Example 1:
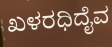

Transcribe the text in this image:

ಖಳರಧಿದೈವ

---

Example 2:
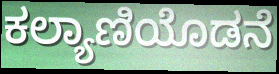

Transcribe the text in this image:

ಕಲ್ಯಾಣಿಯೊಡನೆ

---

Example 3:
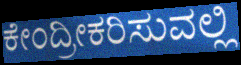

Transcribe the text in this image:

ಕೇಂದ್ರೀಕರಿಸುವಲ್ಲಿ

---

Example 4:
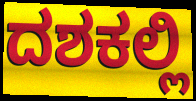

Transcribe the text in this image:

ದಶಕಲ್ಲಿ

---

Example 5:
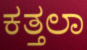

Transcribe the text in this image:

ಕತ್ತಲಾ